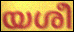
യശീ